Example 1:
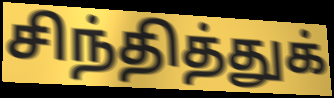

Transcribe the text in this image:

சிந்தித்துக்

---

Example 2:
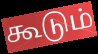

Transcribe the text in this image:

கூடும்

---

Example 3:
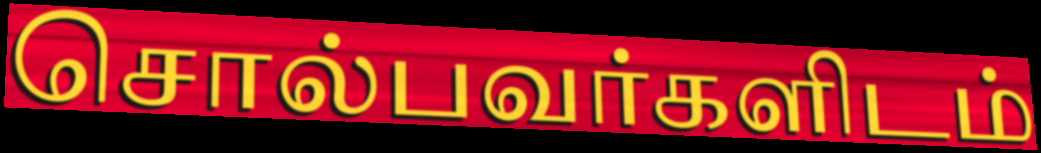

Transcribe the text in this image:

சொல்பவர்களிடம்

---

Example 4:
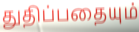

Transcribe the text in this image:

துதிப்பதையும்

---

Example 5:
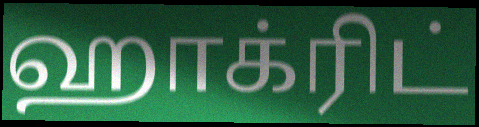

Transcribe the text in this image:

ஹாக்ரிட்